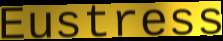
Eustress